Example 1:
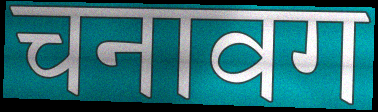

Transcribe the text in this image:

चनावग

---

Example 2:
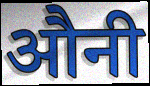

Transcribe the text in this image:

औनी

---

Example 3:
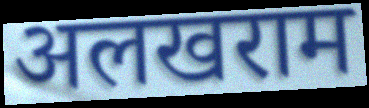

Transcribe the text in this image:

अलखराम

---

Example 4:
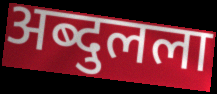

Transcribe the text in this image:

अब्दुलला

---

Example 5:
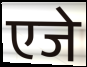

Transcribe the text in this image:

एजे